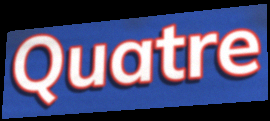
Quatre